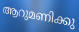
ആറുമണിക്കു